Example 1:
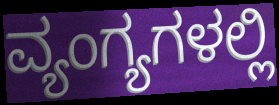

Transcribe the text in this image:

ವ್ಯಂಗ್ಯಗಳಲ್ಲಿ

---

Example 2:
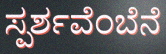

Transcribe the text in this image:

ಸ್ಪರ್ಶವೆಂಬೆನೆ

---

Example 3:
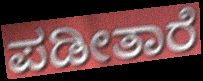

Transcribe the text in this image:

ಪಡೀತಾರೆ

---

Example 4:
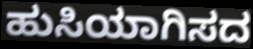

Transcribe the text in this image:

ಹುಸಿಯಾಗಿಸದ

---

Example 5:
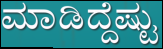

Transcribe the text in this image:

ಮಾಡಿದ್ದೆಷ್ಟು